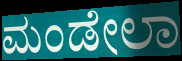
ಮಂಡೇಲಾ